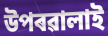
উপৰৱালাই